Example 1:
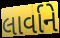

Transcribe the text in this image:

લાર્વાને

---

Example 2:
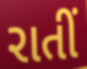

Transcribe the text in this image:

રાતીં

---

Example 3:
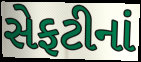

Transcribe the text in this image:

સેફટીનાં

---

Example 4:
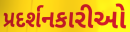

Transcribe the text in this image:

પ્રદર્શનકારીઓ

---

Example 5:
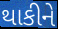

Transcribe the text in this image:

થાકીને